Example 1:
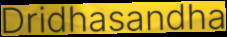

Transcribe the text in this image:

Dridhasandha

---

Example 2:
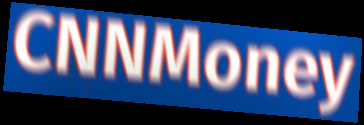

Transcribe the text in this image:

CNNMoney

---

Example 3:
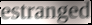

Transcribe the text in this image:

estranged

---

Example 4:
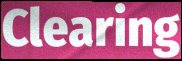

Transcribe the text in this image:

Clearing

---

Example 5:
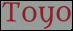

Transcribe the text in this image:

Toyo